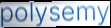
polysemy